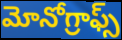
మోనోగ్రాఫ్స్